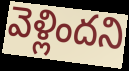
వెళ్లిందని